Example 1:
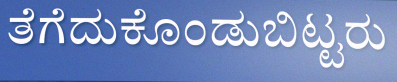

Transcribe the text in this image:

ತೆಗೆದುಕೊಂಡುಬಿಟ್ಟರು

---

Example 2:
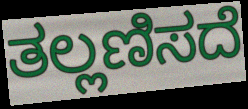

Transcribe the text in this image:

ತಲ್ಲಣಿಸದೆ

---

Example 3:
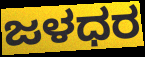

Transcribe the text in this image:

ಜಳಧರ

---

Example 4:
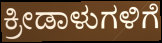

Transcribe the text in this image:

ಕ್ರೀಡಾಳುಗಳಿಗೆ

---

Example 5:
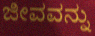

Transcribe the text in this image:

ಜೀವವನ್ನು